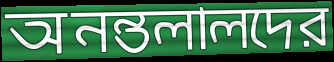
অনন্তলালদের